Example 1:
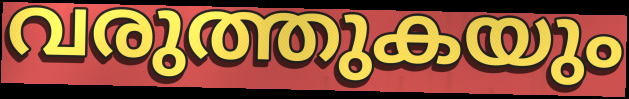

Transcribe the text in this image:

വരുത്തുകയും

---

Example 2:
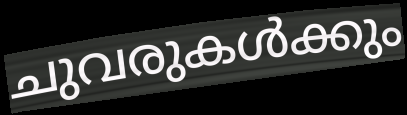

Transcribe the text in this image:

ചുവരുകൾക്കും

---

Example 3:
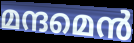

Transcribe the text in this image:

മന്ദമെൻ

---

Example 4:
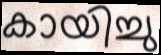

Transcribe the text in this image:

കായിച്ചു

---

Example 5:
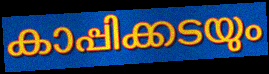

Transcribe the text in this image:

കാപ്പിക്കടയും